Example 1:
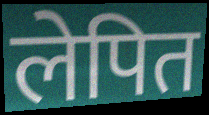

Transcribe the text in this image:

लेपित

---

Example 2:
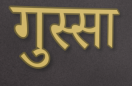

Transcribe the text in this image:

गुस्सा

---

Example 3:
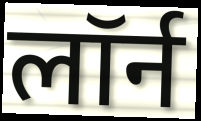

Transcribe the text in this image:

लॉर्न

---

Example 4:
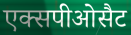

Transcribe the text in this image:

एक्सपीओसैट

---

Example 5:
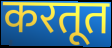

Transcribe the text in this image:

करतूत